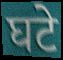
घटे